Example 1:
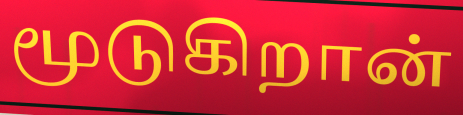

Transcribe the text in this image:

மூடுகிறான்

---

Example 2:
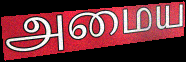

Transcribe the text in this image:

அமைய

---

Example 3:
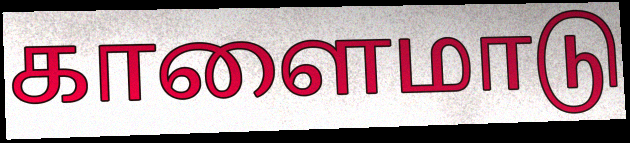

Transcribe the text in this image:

காளைமாடு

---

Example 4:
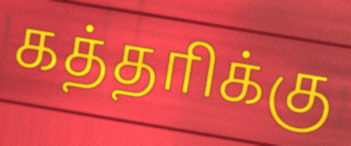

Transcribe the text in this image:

கத்தரிக்கு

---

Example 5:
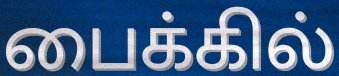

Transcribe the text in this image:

பைக்கில்